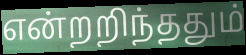
என்றறிந்ததும்